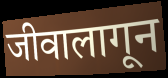
जीवालागून